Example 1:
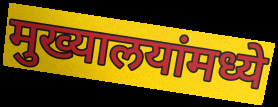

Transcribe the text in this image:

मुख्यालयांमध्ये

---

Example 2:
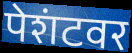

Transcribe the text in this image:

पेशंटवर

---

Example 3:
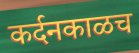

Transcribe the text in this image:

कर्दनकाळच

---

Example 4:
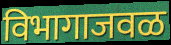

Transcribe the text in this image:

विभागाजवळ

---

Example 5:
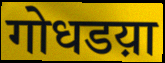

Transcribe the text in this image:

गोधडय़ा